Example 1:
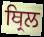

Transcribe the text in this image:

ਥ੍ਰਿਲ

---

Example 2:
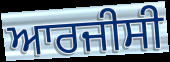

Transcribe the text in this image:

ਆਰਜੀਸੀ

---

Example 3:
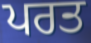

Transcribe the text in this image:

ਪਰਤ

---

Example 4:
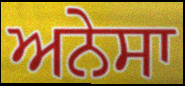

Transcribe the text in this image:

ਅਨੇਸਾ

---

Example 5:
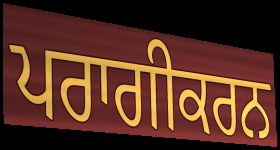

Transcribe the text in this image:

ਪਰਾਗੀਕਰਨ